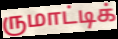
ருமாட்டிக்